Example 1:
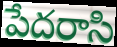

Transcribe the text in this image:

పేదరాసి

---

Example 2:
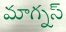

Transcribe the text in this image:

మాగ్నస్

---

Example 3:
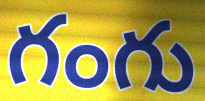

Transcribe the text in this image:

గంగు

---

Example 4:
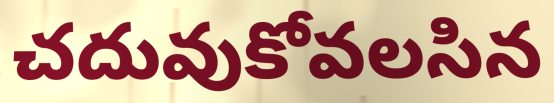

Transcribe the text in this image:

చదువుకోవలసిన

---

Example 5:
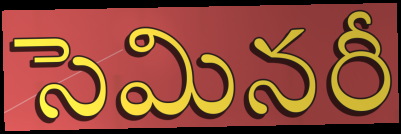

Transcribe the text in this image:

సెమినరీ